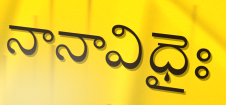
నానావిధైః